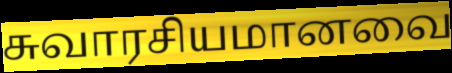
சுவாரசியமானவை